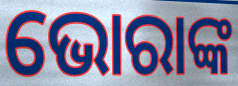
ଭୋରାଙ୍କ